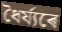
ধৈৰ্য্যৰে